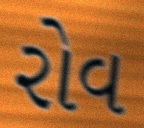
રોવ